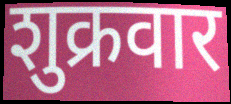
शुक्रवार